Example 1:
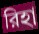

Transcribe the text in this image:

রিহা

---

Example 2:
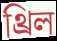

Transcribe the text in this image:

থ্রিল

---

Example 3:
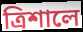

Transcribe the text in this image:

ত্রিশালে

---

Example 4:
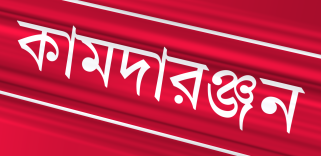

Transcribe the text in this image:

কামদারঞ্জন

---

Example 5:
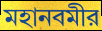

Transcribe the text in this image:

মহানবমীর